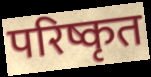
परिष्कृत